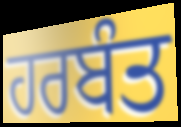
ਹਰਬੰਤ